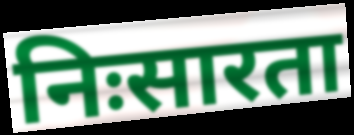
निःसारता